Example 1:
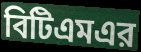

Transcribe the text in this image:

বিটিএমএর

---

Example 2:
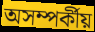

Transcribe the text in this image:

অসম্পর্কীয়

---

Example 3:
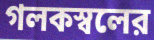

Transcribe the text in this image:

গলকস্বলের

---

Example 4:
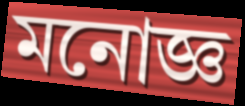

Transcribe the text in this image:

মনোজ্ঞ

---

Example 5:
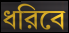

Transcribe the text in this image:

ধরিবে